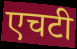
एचटी